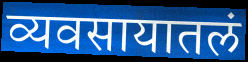
व्यवसायातलं